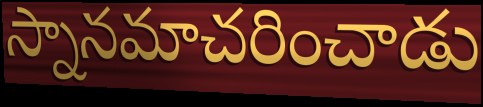
స్నానమాచరించాడు